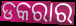
ଡକରାର